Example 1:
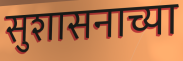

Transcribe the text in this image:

सुशासनाच्या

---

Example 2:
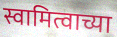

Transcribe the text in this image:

स्वामित्वाच्या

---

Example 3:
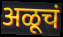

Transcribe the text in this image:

अळूचं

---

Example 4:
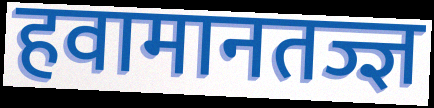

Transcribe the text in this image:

हवामानतज्ज्ञ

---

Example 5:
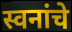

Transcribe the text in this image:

स्वनांचे